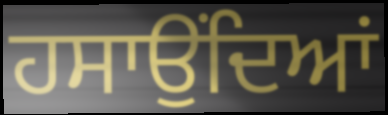
ਹਸਾਉਂਦਿਆਂ